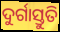
ଦୁର୍ଗାସ୍ତୁତି